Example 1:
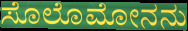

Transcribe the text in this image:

ಸೊಲೊಮೋನನು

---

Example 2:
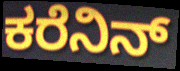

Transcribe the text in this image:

ಕರೆನಿನ್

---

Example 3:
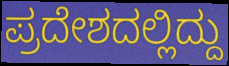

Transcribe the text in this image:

ಪ್ರದೇಶದಲ್ಲಿದ್ದು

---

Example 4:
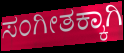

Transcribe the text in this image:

ಸಂಗೀತಕ್ಕಾಗಿ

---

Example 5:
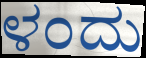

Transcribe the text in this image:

ಳಂದು